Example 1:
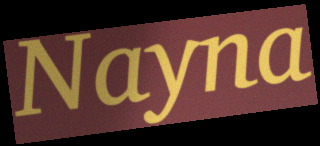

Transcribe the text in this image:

Nayna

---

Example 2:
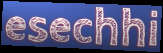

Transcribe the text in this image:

esechhi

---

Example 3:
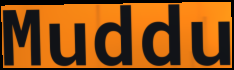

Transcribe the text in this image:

Muddu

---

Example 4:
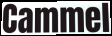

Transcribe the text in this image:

Cammel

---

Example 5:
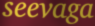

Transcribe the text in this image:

seevaga